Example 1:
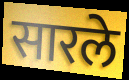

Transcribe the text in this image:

सारले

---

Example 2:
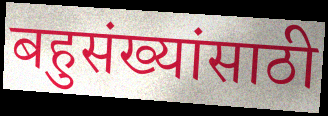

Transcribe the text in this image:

बहुसंख्यांसाठी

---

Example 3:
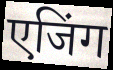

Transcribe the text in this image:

एजिंग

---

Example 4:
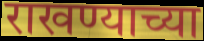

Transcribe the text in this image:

राखण्याच्या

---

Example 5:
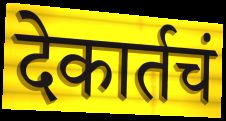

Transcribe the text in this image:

देकार्तचं